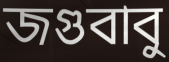
জগুবাবু